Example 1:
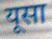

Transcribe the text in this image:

यूसा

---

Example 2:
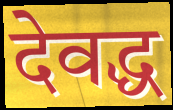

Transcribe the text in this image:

देवद्ध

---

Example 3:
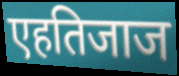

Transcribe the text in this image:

एहतिजाज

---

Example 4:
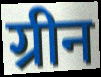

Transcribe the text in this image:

ग्रीन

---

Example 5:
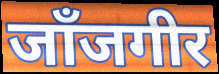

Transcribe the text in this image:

जाँजगीर